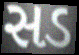
સડ